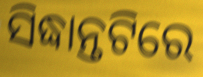
ସିଦ୍ଧାନ୍ତଟିରେ